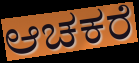
ಆಚಕರೆ